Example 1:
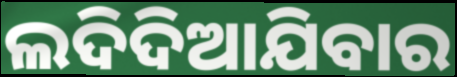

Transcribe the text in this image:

ଲଦିଦିଆଯିବାର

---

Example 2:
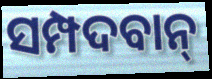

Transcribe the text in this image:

ସମ୍ପଦବାନ୍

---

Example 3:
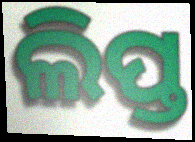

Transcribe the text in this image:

ଲିପ୍ତ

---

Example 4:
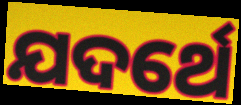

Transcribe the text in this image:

ଯଦର୍ଥେ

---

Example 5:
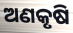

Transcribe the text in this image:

ଅଣକୃଷି